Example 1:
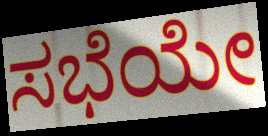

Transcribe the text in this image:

ಸಭೆಯೇ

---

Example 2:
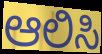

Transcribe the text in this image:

ಆಲಿಸಿ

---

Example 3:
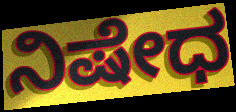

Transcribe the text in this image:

ನಿಷೇಧ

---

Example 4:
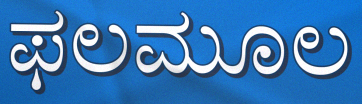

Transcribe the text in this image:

ಫಲಮೂಲ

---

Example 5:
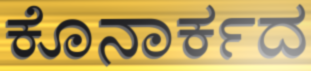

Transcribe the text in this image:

ಕೊನಾರ್ಕದ